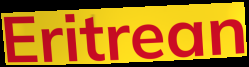
Eritrean